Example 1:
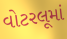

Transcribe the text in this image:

વોટરલૂમાં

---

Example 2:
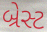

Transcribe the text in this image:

બ્રેસ્ટ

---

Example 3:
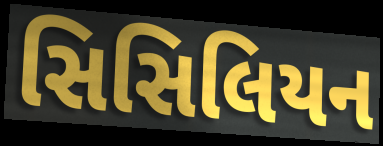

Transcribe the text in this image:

સિસિલિયન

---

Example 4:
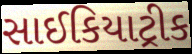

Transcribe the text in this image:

સાઈકિયાટ્રીક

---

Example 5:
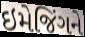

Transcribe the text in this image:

ઇમેજિંગને